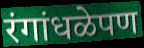
रंगांधळेपण